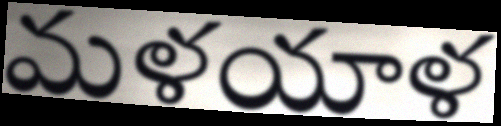
మళయాళ